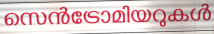
സെൻട്രോമിയറുകൾ